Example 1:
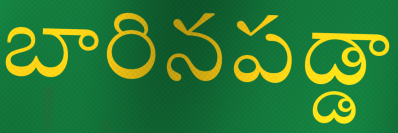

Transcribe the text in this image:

బారినపడ్డా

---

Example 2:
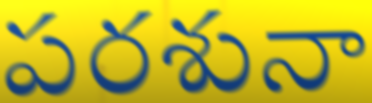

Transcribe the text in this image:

పరశునా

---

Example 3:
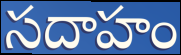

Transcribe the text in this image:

సదాహం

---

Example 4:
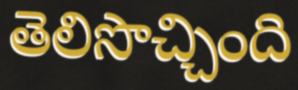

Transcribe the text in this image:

తెలిసొచ్చింది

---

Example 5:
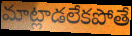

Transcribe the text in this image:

మాట్లాడలేకపోతే